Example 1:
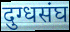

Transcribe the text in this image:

दुग्धसंघ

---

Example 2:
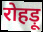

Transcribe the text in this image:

रोहड़ू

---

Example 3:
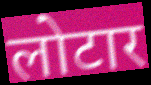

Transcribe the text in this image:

लोटार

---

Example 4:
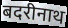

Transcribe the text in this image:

बदरीनाथ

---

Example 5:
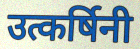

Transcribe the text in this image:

उत्कर्षिनी